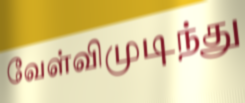
வேள்விமுடிந்து